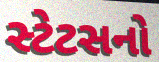
સ્ટેટસનો